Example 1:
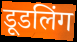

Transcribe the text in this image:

डूडलिंग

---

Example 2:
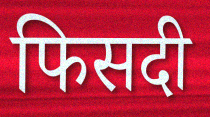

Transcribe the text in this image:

फिसदी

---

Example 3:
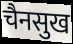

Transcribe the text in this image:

चैनसुख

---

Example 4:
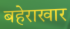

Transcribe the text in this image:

बहेराखार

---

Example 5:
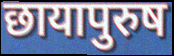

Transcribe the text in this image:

छायापुरुष